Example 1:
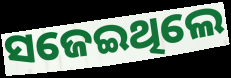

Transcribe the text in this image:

ସଜେଇଥିଲେ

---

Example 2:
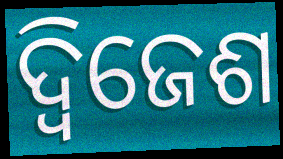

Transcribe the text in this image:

ଦ୍ୱିଜେଶ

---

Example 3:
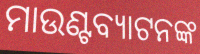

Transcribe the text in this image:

ମାଉଣ୍ଟବ୍ୟାଟନଙ୍କ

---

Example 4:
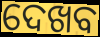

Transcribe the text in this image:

ଦେଖବ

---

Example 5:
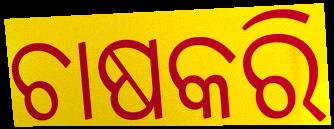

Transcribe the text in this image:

ଚାଷକରି